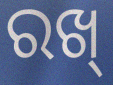
ରଖ୍